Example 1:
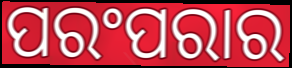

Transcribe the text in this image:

ପରଂପରାର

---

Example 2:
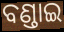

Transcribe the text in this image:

ବଣ୍ଡାଇ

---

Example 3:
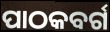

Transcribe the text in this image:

ପାଠକବର୍ଗ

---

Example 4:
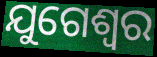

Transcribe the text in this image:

ଯୁଗେଶ୍ଵର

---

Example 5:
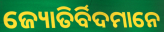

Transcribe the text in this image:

ଜ୍ୟୋତିର୍ବିଦମାନେ